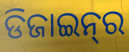
ଡିଜାଇନ୍‌ର